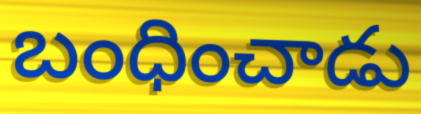
బంధించాడు